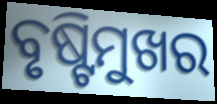
ବୃଷ୍ଟିମୁଖର